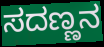
ಸದಣ್ಣನ